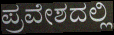
ಪ್ರವೇಶದಲ್ಲಿ